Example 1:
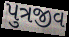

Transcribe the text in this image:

પુત્રજીવ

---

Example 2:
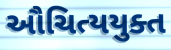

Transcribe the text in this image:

ઔચિત્યયુક્ત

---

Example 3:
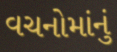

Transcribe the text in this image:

વચનોમાંનું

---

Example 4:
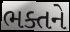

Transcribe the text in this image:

ભક્તને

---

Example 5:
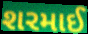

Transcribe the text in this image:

શરમાઈ